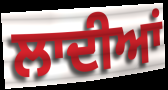
ਲਾਦੀਆਂ